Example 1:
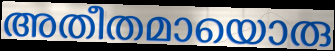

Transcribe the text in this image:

അതീതമായൊരു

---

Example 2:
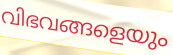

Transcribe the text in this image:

വിഭവങ്ങളെയും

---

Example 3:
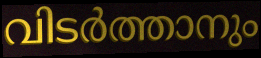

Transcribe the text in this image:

വിടർത്താനും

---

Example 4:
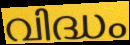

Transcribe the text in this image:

വിദ്ധം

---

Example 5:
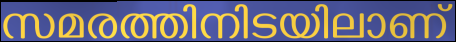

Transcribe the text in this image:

സമരത്തിനിടയിലാണ്